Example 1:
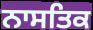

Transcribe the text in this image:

ਨਾਸਤਿਕ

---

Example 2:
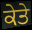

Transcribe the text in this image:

ਕੇਤੇ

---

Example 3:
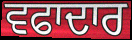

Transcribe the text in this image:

ਵਫਾਦਾਰ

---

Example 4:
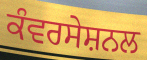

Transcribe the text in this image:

ਕੰਵਰਸੇਸ਼ਨਲ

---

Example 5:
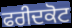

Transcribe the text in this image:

ਫਰੀਦਕੋਟ